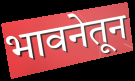
भावनेतून